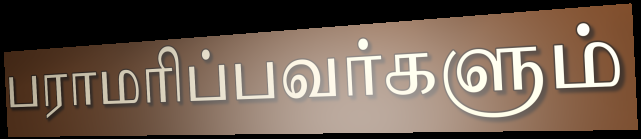
பராமரிப்பவர்களும்